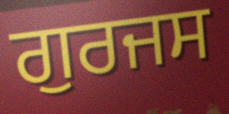
ਗੁਰਜਸ